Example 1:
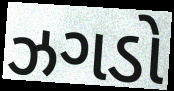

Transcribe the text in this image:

ઝગડો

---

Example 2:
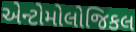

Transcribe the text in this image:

એન્ટોમોલોજિકલ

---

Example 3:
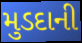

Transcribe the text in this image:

મુડદાની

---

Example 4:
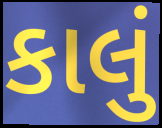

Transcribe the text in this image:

કાલું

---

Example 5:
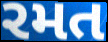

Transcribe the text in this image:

રમત